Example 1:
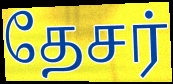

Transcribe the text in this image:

தேசர்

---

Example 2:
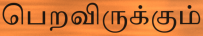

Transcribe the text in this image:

பெறவிருக்கும்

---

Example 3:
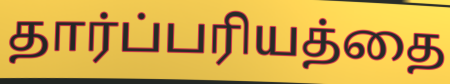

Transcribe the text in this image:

தார்ப்பரியத்தை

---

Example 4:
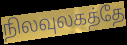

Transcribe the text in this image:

நிலவுலகத்தே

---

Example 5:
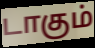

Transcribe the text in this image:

டாகும்